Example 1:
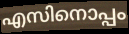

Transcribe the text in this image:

എസിനൊപ്പം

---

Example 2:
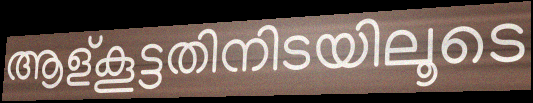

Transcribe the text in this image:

ആള്കൂട്ടതിനിടയിലൂടെ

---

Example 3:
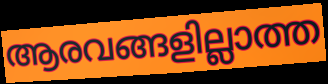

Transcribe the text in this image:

ആരവങ്ങളില്ലാത്ത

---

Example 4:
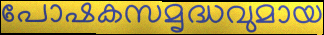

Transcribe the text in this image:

പോഷകസമൃദ്ധവുമായ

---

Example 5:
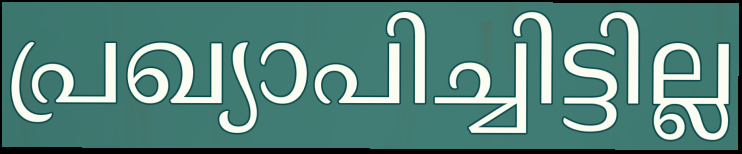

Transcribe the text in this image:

പ്രഖ്യാപിച്ചിട്ടില്ല